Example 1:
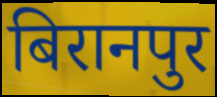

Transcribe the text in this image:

बिरानपुर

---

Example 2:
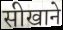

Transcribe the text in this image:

सीखाने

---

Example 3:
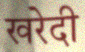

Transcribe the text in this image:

खरेदी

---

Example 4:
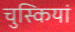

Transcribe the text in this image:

चुस्कियां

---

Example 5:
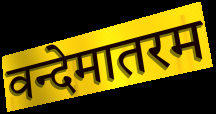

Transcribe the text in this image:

वन्देमातरम